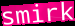
smirk